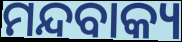
ମନ୍ଦବାକ୍ୟ